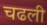
चढली